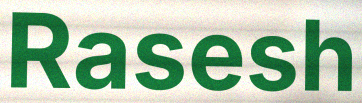
Rasesh